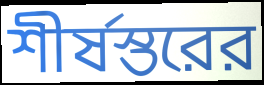
শীর্ষস্তরের